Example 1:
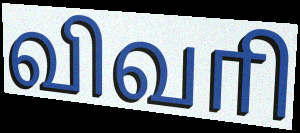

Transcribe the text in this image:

விவரி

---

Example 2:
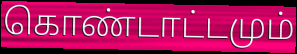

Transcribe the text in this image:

கொண்டாட்டமும்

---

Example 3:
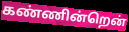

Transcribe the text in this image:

கண்ணின்றென்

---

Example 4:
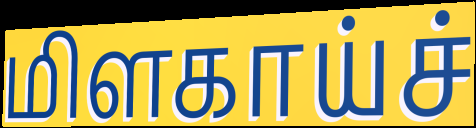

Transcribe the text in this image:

மிளகாய்ச்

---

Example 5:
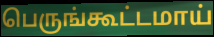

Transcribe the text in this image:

பெருங்கூட்டமாய்